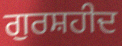
ਗੁਰਸ਼ਹੀਦ